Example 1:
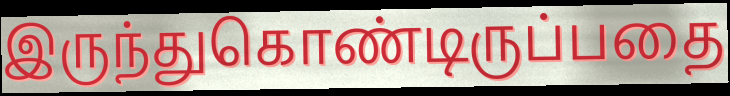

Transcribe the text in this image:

இருந்துகொண்டிருப்பதை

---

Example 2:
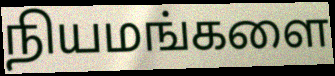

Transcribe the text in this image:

நியமங்களை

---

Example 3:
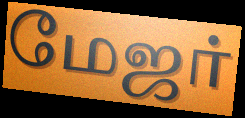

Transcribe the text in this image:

மேஜர்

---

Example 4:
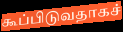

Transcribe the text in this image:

கூப்பிடுவதாகச்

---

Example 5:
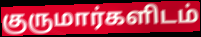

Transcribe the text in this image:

குருமார்களிடம்